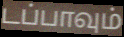
டப்பாவும்